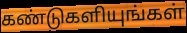
கண்டுகளியுங்கள்